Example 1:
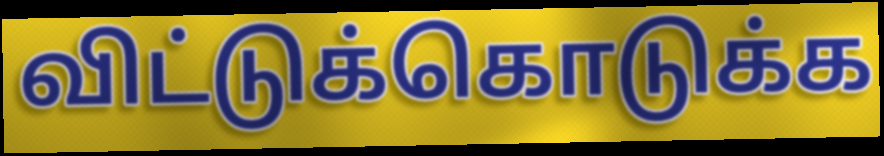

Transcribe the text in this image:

விட்டுக்கொடுக்க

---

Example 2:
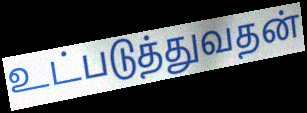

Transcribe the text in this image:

உட்படுத்துவதன்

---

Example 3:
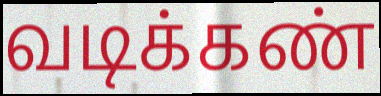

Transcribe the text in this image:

வடிக்கண்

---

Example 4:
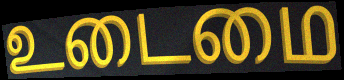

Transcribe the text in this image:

உடைமை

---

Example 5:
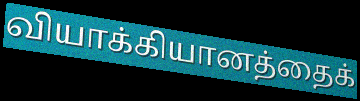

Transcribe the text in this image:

வியாக்கியானத்தைக்